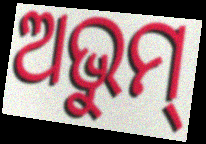
ଅଭୁମ୍